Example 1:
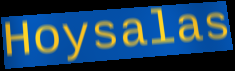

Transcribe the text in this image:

Hoysalas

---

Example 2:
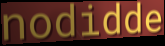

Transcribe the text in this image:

nodidde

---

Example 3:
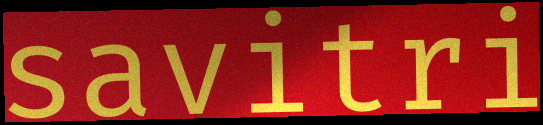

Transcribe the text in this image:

savitri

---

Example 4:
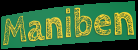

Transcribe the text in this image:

Maniben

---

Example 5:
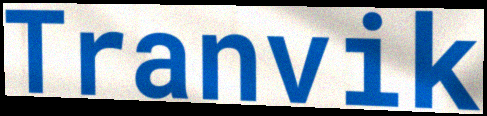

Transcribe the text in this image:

Tranvik